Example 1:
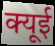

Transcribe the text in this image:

क्यूई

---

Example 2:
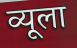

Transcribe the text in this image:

व्यूला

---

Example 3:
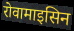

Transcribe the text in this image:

रोवामाइसिन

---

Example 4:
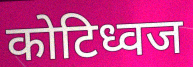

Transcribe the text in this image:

कोटिध्वज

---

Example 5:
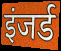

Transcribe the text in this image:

इंजर्ड